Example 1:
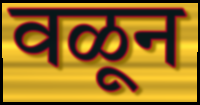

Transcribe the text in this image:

वळून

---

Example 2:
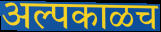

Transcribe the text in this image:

अल्पकाळच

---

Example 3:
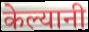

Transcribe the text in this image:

केल्यानी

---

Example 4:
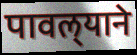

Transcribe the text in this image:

पावल्याने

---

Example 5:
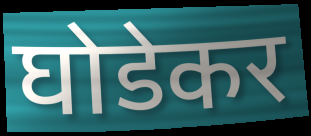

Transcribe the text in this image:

घोडेकर